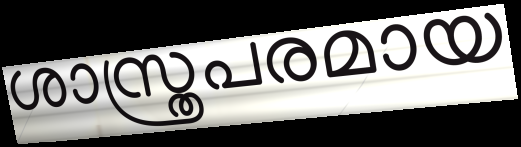
ശാസ്ത്രപരമായ